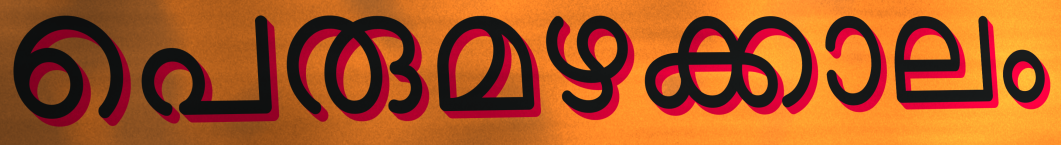
പെരുമഴക്കാലം